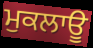
ਮੁਕਲਾਊ